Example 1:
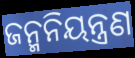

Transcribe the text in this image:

ଜନ୍ମନିୟନ୍ତ୍ରଣ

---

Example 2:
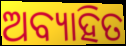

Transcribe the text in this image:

ଅବ୍ୟାହିତ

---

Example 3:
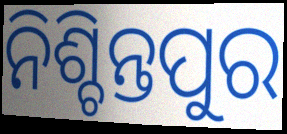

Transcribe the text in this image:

ନିଶ୍ଚିନ୍ତପୁର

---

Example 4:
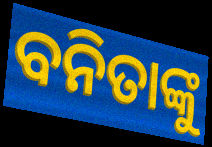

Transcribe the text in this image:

ବନିତାଙ୍କୁ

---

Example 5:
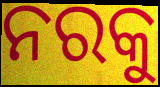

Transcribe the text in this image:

ନରକୁ